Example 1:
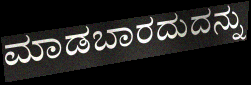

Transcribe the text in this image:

ಮಾಡಬಾರದುದನ್ನು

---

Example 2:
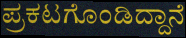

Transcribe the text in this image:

ಪ್ರಕಟಗೊಂಡಿದ್ದಾನೆ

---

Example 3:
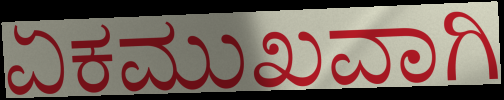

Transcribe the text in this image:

ಏಕಮುಖವಾಗಿ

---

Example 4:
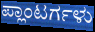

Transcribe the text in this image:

ಪ್ಲಾಂಟರ್ಗಳು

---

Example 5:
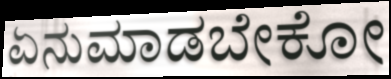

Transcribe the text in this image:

ಏನುಮಾಡಬೇಕೋ